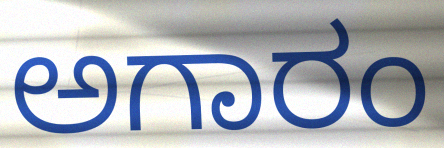
ಅಗಾರಂ